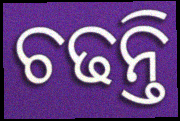
ଚଢନ୍ତି